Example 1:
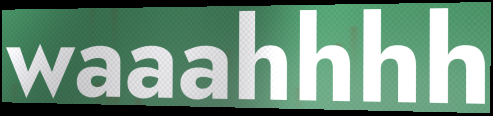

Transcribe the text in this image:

waaahhhh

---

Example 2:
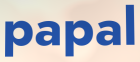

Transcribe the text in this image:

papal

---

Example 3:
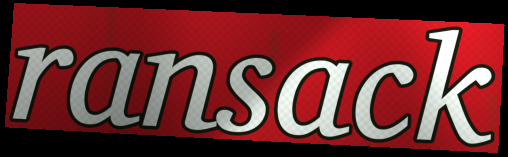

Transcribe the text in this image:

ransack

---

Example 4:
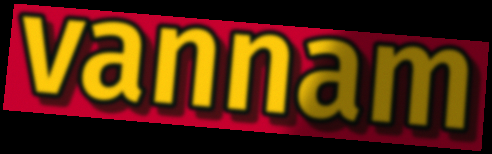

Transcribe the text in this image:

vannam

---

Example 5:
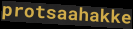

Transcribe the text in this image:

protsaahakke